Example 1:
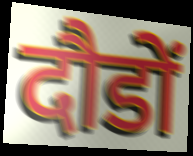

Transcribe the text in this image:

दौडों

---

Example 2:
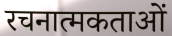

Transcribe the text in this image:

रचनात्मकताओं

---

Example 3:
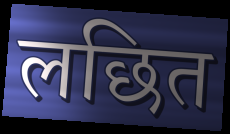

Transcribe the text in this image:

लछित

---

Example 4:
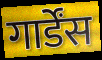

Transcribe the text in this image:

गार्डेंस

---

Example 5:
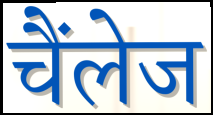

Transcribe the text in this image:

चैंलेज